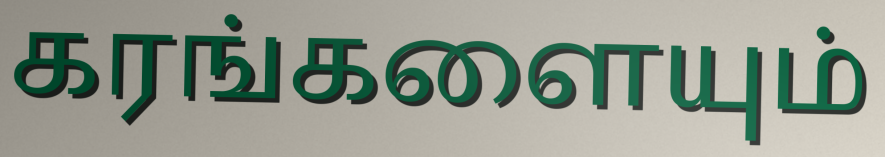
கரங்களையும்